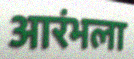
आरंभला